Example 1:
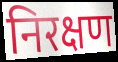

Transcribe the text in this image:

निरक्षण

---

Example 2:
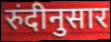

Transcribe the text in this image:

रुंदीनुसार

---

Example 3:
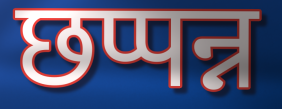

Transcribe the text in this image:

छप्पन्न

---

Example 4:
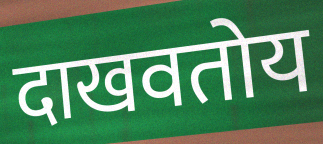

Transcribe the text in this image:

दाखवतोय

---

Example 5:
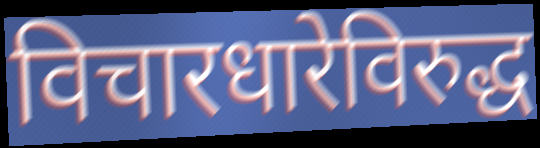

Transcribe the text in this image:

विचारधारेविरुद्ध